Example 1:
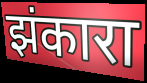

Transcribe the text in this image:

झंकारा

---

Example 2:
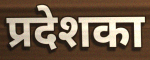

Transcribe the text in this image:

प्रदेशका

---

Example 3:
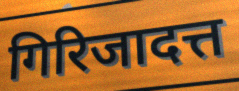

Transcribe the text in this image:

गिरिजादत्त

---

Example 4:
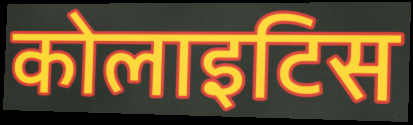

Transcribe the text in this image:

कोलाइटिस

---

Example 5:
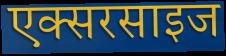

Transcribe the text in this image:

एक्सरसाइज